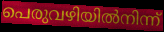
പെരുവഴിയിൽനിന്ന്